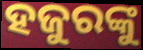
ହଜୁରଙ୍କୁ